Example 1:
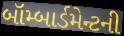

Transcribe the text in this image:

બૉમ્બાર્ડમેન્ટની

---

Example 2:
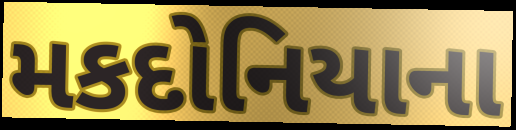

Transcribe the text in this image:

મકદોનિયાના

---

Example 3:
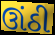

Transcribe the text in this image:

ઊંઠી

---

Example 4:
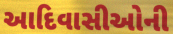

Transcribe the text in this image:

આદિવાસીઓની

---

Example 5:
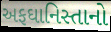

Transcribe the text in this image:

અફઘાનિસ્તાનો